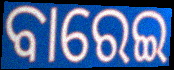
ବାରେଇ